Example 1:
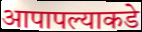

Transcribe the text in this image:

आपापल्याकडे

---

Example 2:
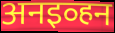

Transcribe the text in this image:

अनइव्हन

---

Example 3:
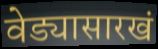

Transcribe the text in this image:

वेड्यासारखं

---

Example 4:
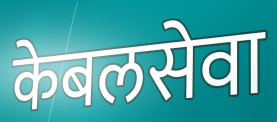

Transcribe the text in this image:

केबलसेवा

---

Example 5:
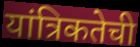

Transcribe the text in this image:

यांत्रिकतेची